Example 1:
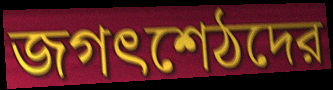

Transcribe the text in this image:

জগৎশেঠদের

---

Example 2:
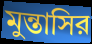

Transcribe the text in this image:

মুন্তাসির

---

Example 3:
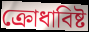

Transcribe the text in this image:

ক্রোধাবিষ্ট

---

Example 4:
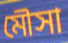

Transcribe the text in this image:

মৌসা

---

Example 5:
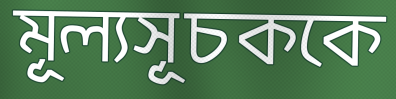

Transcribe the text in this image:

মূল্যসূচককে